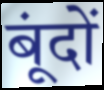
बूंदों